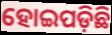
ହୋଇପଡ଼ିଛି